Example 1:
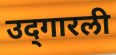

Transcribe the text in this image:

उद्‌गारली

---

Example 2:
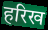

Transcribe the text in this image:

हरिख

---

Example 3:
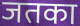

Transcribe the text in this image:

जतका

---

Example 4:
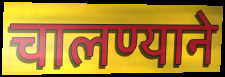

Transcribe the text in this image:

चालण्याने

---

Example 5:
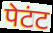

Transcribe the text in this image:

पेटंट